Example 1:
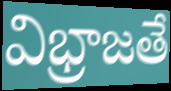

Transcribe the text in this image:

విభ్రాజతే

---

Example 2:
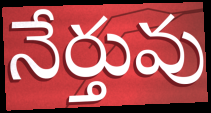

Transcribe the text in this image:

నేర్తువు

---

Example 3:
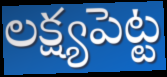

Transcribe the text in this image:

లక్ష్యపెట్ట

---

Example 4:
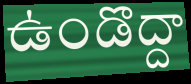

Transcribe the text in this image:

ఉండొద్దా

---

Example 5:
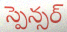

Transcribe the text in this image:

స్పెన్సర్